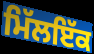
ਮਿੱਲਇੱਕ